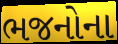
ભજનોના